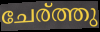
ചേര്ത്തു